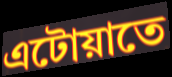
এটোয়াতে